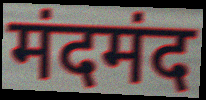
मंदमंद